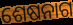
ଶେଷନାଗ